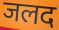
जलद